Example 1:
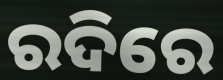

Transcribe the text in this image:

ରଦିରେ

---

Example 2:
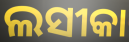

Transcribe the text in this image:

ଲସୀକା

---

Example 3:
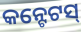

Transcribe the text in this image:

କନ୍ଟେଟସ୍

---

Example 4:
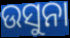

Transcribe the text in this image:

ଉସୁନା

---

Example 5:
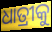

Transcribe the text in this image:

ଧାତ୍ରୀକୁ